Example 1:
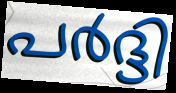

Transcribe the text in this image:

പർദ്ദി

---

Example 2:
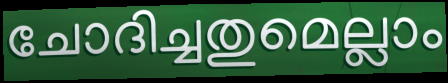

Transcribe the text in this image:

ചോദിച്ചതുമെല്ലാം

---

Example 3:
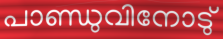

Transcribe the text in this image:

പാണ്ഡുവിനോടു്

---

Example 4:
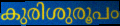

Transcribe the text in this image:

കുരിശുരൂപം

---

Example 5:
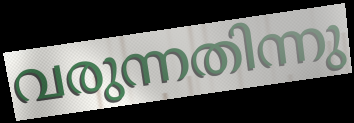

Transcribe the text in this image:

വരുന്നതിന്നു